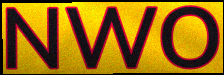
NWO